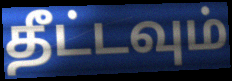
தீட்டவும்